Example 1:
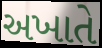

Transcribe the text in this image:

અખાતે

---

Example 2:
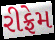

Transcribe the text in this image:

રીફ્રેમ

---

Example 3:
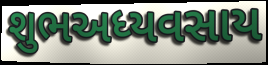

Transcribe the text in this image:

શુભઅધ્યવસાય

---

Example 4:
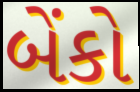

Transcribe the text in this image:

બેંકો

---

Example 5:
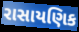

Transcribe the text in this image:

રાસાયણિક